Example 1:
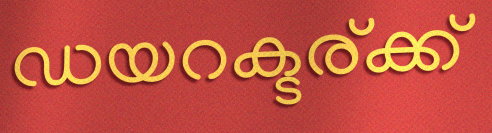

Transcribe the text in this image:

ഡയറക്ടര്ക്ക്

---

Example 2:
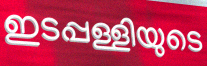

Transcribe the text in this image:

ഇടപ്പള്ളിയുടെ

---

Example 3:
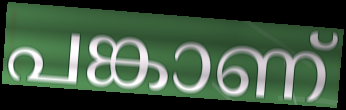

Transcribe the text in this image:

പങ്കാണ്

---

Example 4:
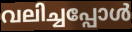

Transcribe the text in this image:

വലിച്ചപ്പോൾ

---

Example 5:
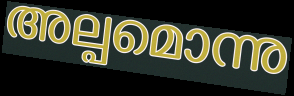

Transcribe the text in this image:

അല്പമൊന്നു